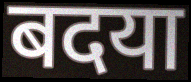
बदया